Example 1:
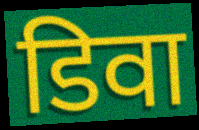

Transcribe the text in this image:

डिवा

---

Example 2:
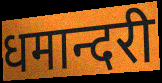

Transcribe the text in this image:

धमान्दरी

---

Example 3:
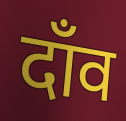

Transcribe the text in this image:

दाँव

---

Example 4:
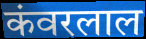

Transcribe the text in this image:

कंवरलाल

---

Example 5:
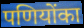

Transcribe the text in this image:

पणियोंका